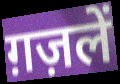
ग़ज़लें